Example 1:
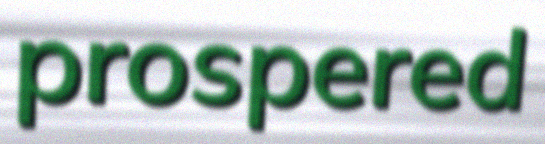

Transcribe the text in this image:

prospered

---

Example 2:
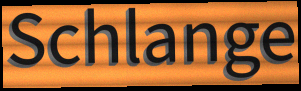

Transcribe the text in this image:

Schlange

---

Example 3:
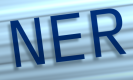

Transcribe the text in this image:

NER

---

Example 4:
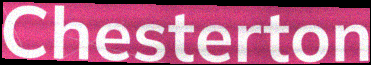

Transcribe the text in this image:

Chesterton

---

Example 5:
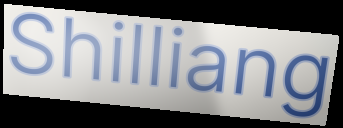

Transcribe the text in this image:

Shilliang